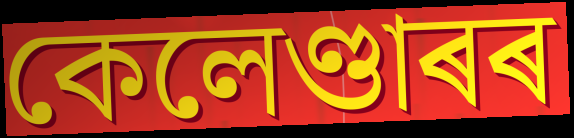
কেলেণ্ডাৰৰ